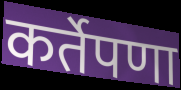
कर्तेपणा